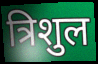
त्रिशुल